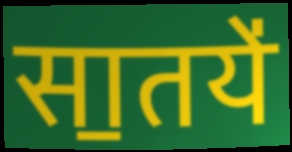
सा॒तये॑